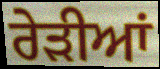
ਰੇੜੀਆਂ